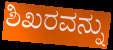
ಶಿಖರವನ್ನು